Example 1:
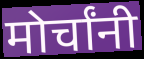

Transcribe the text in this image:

मोर्चांनी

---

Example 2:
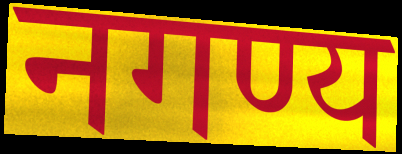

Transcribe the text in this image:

नगण्य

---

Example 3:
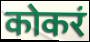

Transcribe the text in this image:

कोकरं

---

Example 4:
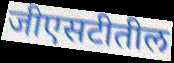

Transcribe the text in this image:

जीएसटीतील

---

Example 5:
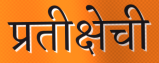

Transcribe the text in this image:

प्रतीक्षेची